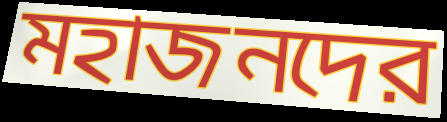
মহাজনদের